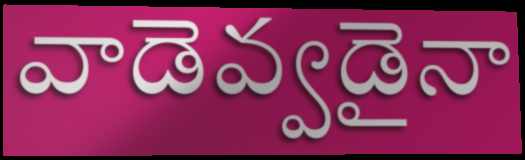
వాడెవ్వడైనా